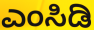
ಎಂಸಿಡಿ